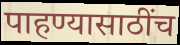
पाहण्यासाठींच